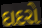
દાદરો